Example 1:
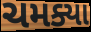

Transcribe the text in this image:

ચમક્યા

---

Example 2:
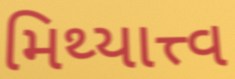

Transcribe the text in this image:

મિથ્યાત્ત્વ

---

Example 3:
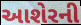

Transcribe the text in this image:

આશેરની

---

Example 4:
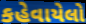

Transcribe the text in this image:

કહેવાયેલો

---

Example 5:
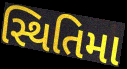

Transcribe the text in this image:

સ્થિતિમા